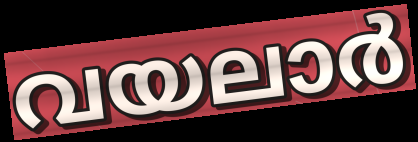
വയലാർ